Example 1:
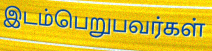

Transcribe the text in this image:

இடம்பெறுபவர்கள்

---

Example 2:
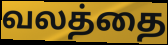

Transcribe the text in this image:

வலத்தை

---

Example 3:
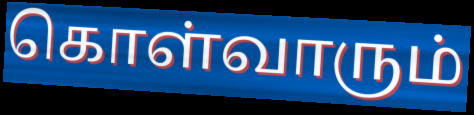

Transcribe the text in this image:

கொள்வாரும்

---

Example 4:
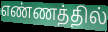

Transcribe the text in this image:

எண்ணத்தில்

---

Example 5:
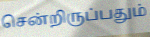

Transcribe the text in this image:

சென்றிருப்பதும்